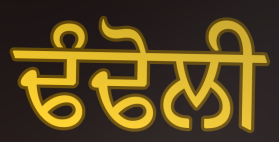
ਢੰਢੋਲੀ